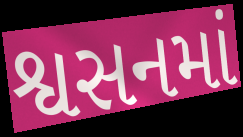
શ્વસનમાં